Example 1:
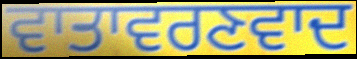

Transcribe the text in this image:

ਵਾਤਾਵਰਣਵਾਦ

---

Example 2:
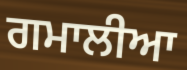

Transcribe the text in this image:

ਗਮਾਲੀਆ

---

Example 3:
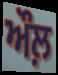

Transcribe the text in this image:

ਔਲ਼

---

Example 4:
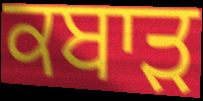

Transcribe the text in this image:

ਕਬਾਡ਼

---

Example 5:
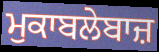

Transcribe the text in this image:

ਮੁਕਾਬਲੇਬਾਜ਼